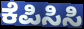
ಕೆಪಿಸಿಸಿ